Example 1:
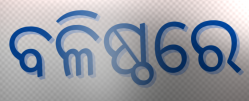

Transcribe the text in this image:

ବଳିଷ୍ଠରେ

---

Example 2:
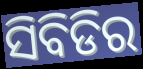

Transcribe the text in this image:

ସିବିଡିର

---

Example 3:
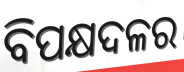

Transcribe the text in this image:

ବିପକ୍ଷଦଳର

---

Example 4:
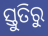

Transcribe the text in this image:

ସ୍ତୁତିରୁ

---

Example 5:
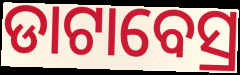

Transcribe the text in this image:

ଡାଟାବେସ୍ର